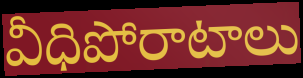
వీధిపోరాటాలు